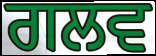
ਗਲਵ